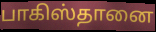
பாகிஸ்தானை